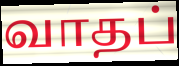
வாதப்